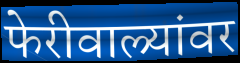
फेरीवाल्यांवर